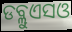
ଡବ୍ଲୁଏସଓ